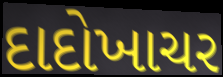
દાદોખાચર